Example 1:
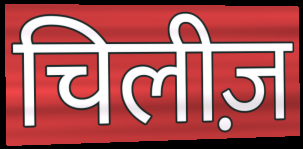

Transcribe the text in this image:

चिलीज़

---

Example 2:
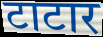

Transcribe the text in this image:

टाटार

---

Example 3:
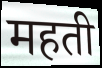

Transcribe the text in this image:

महती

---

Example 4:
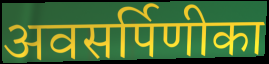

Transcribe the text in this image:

अवसर्पिणीका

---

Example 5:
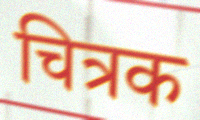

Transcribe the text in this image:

चित्रक